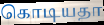
கொடியதா